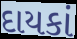
દાયકાં